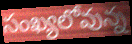
సంఖ్యలోవున్న